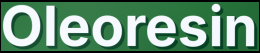
Oleoresin